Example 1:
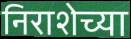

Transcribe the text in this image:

निराशेच्या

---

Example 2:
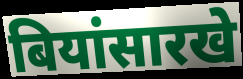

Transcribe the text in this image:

बियांसारखे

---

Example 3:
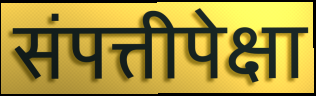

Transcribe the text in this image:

संपत्तीपेक्षा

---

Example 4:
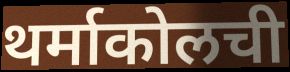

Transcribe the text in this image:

थर्माकोलची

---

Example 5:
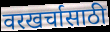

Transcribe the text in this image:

वरखर्चासाठी